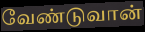
வேண்டுவான்